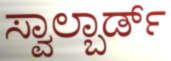
ಸ್ವಾಲ್ಬಾರ್ಡ್